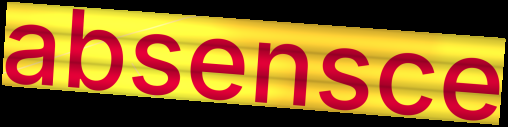
absensce